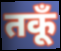
तकूँ